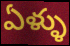
ఏళ్ళు